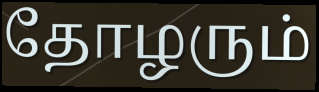
தோழரும்